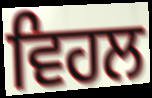
ਵਿਹਲ